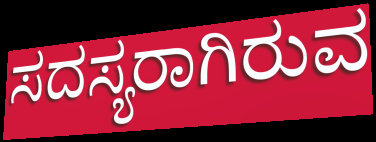
ಸದಸ್ಯರಾಗಿರುವ